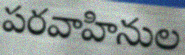
పరవాహినుల